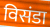
विसंडा